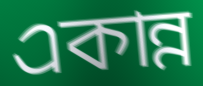
একান্ন